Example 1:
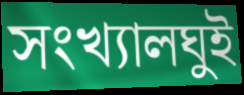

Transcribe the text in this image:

সংখ্যালঘুই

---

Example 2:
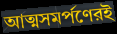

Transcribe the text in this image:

আত্মসমর্পণেরই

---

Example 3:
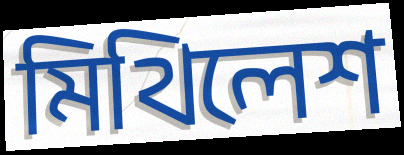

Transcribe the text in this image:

মিথিলেশ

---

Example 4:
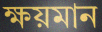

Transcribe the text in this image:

ক্ষয়মান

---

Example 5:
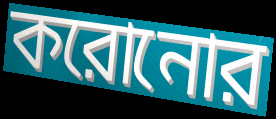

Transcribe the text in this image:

করোনোর